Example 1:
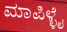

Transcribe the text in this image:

ಮಾಪಿಳ್ಳೈ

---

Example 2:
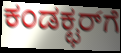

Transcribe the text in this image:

ಕಂಡಕ್ಟರ್‌ಗೆ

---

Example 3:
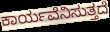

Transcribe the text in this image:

ಕಾರ್ಯವೆನಿಸುತ್ತದೆ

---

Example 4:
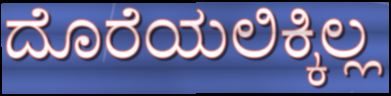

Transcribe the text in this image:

ದೊರೆಯಲಿಕ್ಕಿಲ್ಲ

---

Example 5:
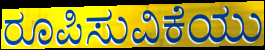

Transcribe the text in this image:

ರೂಪಿಸುವಿಕೆಯು